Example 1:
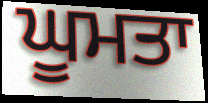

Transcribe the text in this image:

ਘੂਮਤਾ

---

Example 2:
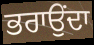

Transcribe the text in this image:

ਭਰਾਉਂਦਾ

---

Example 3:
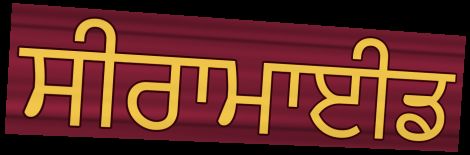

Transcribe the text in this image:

ਸੀਰਾਮਾਈਡ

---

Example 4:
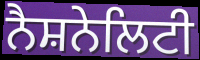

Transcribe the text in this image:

ਨੈਸ਼ਨੇਲਿਟੀ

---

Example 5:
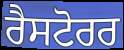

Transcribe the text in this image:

ਰੈਸਟੋਰਰ